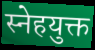
स्नेहयुक्त